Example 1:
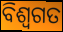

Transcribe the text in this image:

ବିଶ୍ୱଗତ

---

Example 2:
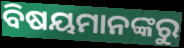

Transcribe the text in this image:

ବିଷୟମାନଙ୍କରୁ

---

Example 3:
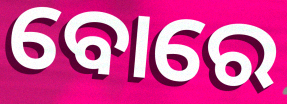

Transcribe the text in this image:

ବୋରେ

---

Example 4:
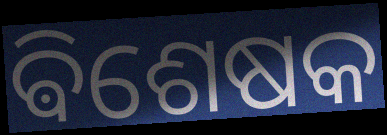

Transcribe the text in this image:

ଵିଶେଷକ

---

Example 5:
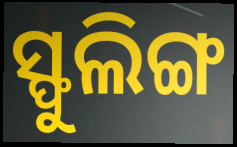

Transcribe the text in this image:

ସ୍ଫୁଲିଙ୍ଗ